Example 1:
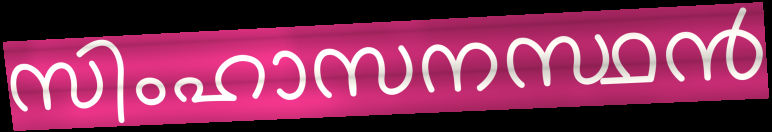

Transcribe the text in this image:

സിംഹാസനസ്ഥൻ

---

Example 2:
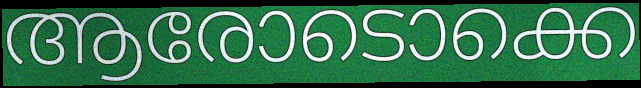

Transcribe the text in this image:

ആരോടൊക്കെ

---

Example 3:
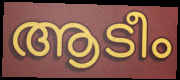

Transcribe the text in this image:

ആടീം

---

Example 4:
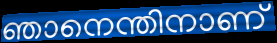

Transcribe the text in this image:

ഞാനെന്തിനാണ്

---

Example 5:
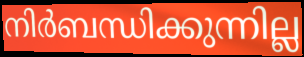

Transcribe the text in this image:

നിർബന്ധിക്കുന്നില്ല